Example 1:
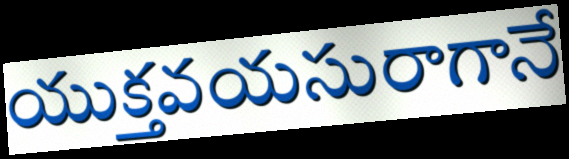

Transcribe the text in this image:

యుక్తవయసురాగానే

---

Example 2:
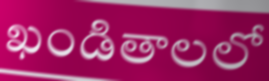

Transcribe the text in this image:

ఖండితాలలో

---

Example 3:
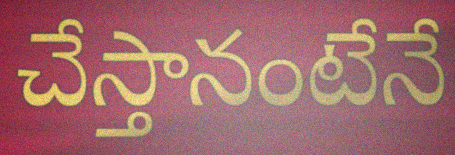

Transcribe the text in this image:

చేస్తానంటేనే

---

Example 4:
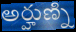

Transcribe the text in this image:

అర్హుణ్ని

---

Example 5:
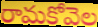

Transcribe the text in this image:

రామకోవెల